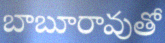
బాబూరావుతో